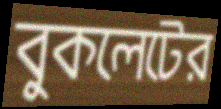
বুকলেটের